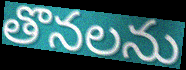
తొనలను